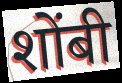
शोंबी